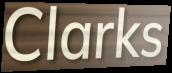
Clarks